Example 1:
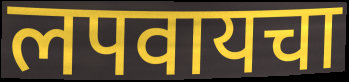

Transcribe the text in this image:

लपवायचा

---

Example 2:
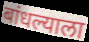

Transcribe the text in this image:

बांधल्याला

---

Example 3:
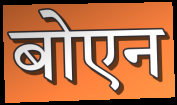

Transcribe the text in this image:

बोएन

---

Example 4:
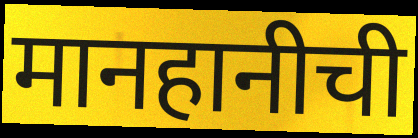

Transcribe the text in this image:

मानहानीची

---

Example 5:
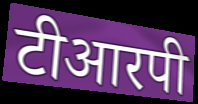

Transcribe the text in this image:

टीआरपी